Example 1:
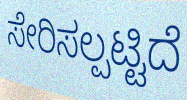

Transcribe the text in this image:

ಸೇರಿಸಲ್ಪಟ್ಟಿದೆ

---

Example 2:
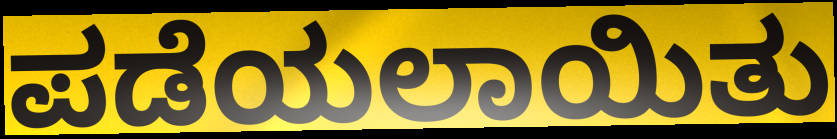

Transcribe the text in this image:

ಪಡೆಯಲಾಯಿತು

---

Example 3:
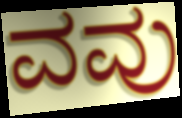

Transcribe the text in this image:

ವವು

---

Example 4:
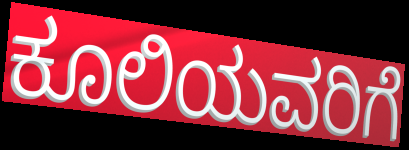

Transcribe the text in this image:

ಕೂಲಿಯವರಿಗೆ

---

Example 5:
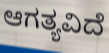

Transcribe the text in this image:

ಆಗತ್ಯವಿದೆ